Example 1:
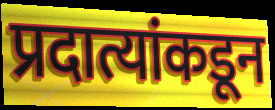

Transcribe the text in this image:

प्रदात्यांकडून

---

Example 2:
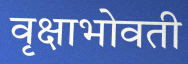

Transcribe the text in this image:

वृक्षाभोवती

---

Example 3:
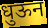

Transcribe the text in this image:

धुऊन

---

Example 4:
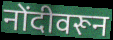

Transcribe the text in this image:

नोंदीवरून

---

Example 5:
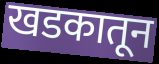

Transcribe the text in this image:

खडकातून